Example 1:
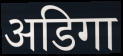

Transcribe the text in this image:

अडिगा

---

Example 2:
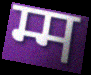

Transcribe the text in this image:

म्म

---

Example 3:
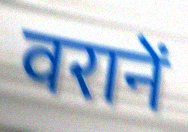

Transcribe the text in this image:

वरानें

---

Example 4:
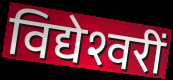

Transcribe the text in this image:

विद्येश्वरीं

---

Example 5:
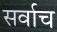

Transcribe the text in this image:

सर्वाच